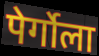
पेर्गोला